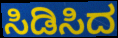
ಸಿಡಿಸಿದ